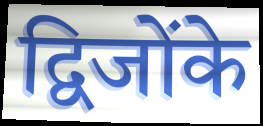
द्विजोंके